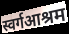
स्वर्गआश्रम